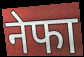
नेफा